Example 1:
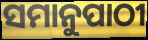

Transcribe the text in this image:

ସମାନୁପାଠୀ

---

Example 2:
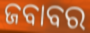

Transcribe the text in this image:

ଜବାବର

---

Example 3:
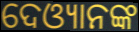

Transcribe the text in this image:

ଦେଓ୍ୟାନଙ୍କ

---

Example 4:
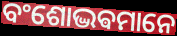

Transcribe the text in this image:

ବଂଶୋଦ୍ଭଵମାନେ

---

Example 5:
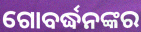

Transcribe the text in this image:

ଗୋବର୍ଦ୍ଧନଙ୍କର